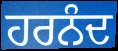
ਹਰਨੰਦ